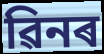
ৱিনৰ